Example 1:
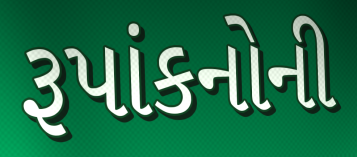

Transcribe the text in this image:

રૂપાંકનોની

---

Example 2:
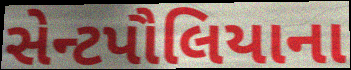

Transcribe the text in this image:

સેન્ટપૌલિયાના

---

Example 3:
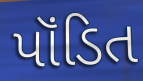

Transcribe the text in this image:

પૉંડિત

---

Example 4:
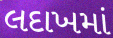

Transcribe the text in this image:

લદાખમાં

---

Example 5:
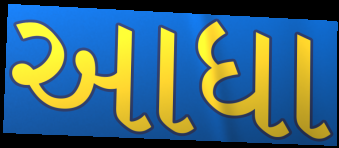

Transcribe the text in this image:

આધા